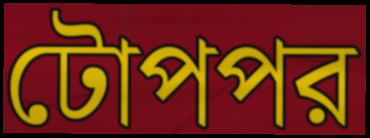
টোপপর